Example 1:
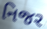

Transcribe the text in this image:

નિજર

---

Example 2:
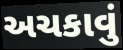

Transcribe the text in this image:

અચકાવું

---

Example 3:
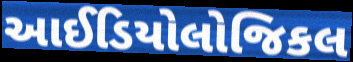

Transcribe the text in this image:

આઈડિયોલોજિકલ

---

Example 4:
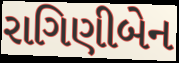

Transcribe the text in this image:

રાગિણીબેન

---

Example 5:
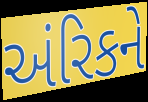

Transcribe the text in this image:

અંરિકને